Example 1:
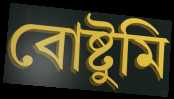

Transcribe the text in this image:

বোষ্টুমি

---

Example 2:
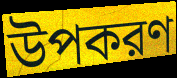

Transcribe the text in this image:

উপকরণ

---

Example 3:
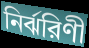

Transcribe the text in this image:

নির্ঝরিণী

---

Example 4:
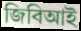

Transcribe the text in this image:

জিবিআই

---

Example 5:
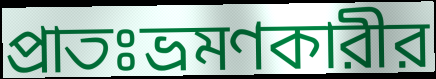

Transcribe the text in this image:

প্রাতঃভ্রমণকারীর